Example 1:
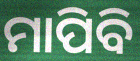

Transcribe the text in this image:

ମାପିବି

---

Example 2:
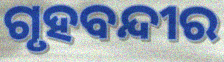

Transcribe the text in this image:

ଗୃହବନ୍ଦୀର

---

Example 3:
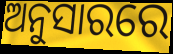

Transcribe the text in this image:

ଅନୁସାରରେ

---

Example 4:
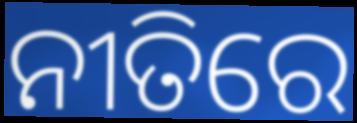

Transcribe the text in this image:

ନୀତିରେ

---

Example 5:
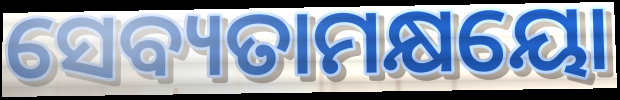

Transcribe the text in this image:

ସେବ୍ୟତାମକ୍ଷୟୋ